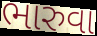
ભારુવા